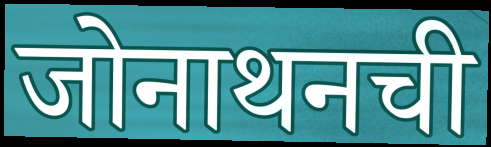
जोनाथनची